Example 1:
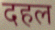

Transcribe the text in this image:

दहल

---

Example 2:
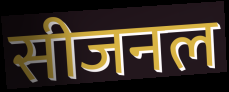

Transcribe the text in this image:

सीजनल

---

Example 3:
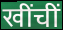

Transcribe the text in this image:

खींचीं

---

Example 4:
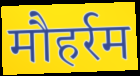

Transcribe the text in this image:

मौहर्रम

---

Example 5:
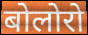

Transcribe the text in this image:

बोलोरो